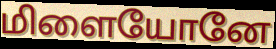
மிளையோனே